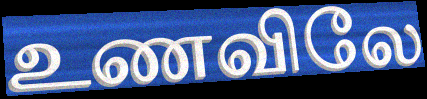
உணவிலே